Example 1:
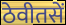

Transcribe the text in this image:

ठेवीतसें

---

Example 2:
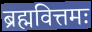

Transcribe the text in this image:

ब्रह्मवित्तमः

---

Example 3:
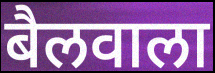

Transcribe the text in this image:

बैलवाला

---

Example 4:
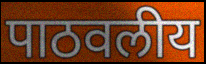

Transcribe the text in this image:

पाठवलीय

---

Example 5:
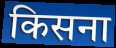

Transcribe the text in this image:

किसना